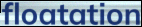
floatation